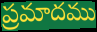
ప్రమాదము